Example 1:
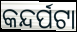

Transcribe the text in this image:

କନ୍ଦର୍ପଟା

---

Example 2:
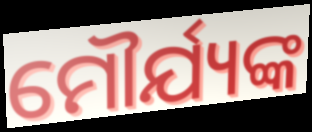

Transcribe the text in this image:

ମୌର୍ଯ୍ୟଙ୍କ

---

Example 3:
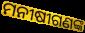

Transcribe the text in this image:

ମନୀଷୀଗଣଙ୍କ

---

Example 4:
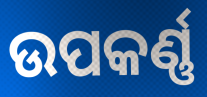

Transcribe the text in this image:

ଉପକର୍ଣ୍ଣ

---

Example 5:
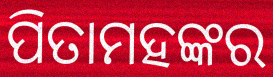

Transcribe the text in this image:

ପିତାମହଙ୍କର